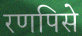
रणपिसे